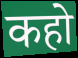
कहो